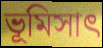
ভূমিসাৎ